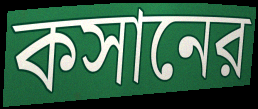
কসানের